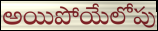
అయిపోయేలోపు